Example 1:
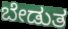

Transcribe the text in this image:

ಬೇಡುತ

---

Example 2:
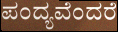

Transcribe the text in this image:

ಪಂದ್ಯವೆಂದರೆ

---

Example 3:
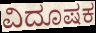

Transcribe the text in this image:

ವಿದೂಷಕ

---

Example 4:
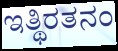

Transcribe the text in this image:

ಇತ್ಥಿರತನಂ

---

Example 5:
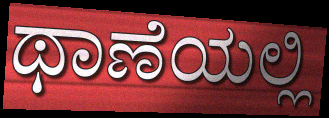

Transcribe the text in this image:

ಥಾಣೆಯಲ್ಲಿ